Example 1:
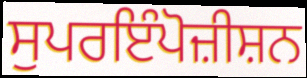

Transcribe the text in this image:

ਸੁਪਰਇੰਪੋਜ਼ੀਸ਼ਨ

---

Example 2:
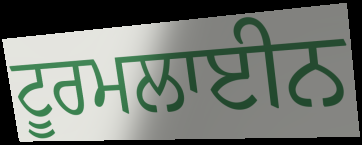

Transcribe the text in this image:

ਟੂਰਮਲਾਈਨ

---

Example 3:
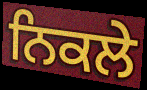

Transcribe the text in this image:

ਨਿਕਲੇ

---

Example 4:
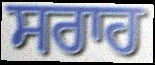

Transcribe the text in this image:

ਸਰਾਹ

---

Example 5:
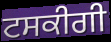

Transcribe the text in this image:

ਟਸਕੀਗੀ